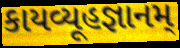
કાયવ્યૂહજ્ઞાનમ્